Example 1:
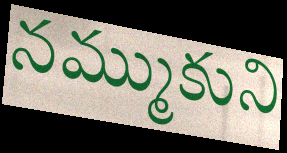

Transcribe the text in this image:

నమ్ముకుని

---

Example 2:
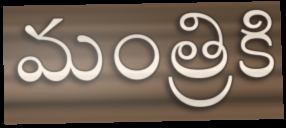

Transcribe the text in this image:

మంత్రికి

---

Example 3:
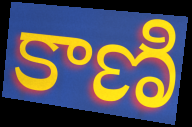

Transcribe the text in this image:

కాణి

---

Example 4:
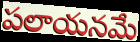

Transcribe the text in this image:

పలాయనమే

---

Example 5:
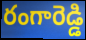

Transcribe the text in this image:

రంగారెడ్డి